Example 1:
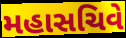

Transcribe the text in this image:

મહાસચિવે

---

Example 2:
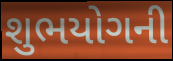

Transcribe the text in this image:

શુભયોગની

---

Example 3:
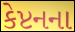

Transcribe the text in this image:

કેપ્ટનના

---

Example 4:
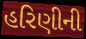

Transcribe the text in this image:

હરિણીની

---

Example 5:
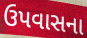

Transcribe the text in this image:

ઉપવાસના